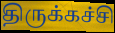
திருக்கச்சி